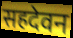
सहदेवन